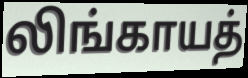
லிங்காயத்